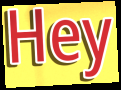
Hey